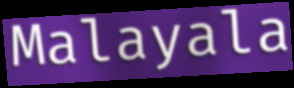
Malayala